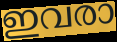
ഇവരാ